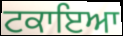
ਟਕਾਇਆ